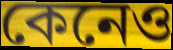
কেনেও